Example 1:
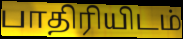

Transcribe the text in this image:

பாதிரியிடம்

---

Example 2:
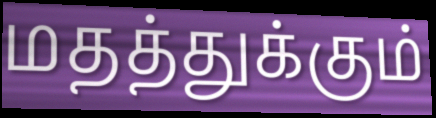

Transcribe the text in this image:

மதத்துக்கும்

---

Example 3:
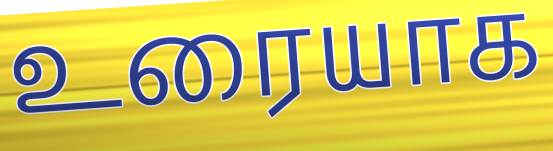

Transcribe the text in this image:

உரையாக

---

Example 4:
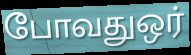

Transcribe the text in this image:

போவதுஒர்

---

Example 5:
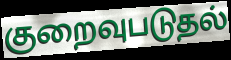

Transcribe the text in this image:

குறைவுபடுதல்